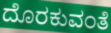
ದೊರಕುವಂತೆ